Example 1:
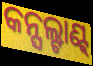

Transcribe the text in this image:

କନ୍ସଲ୍ଟାଣ୍ଟ୍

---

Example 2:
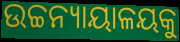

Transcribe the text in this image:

ଉଚ୍ଚନ୍ୟାୟାଳୟକୁ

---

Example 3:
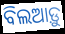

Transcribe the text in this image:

ବିଲଆଡ଼ୁ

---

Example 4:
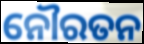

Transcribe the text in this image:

ନୌରତନ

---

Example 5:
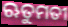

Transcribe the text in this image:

ଋତୁମତୀ